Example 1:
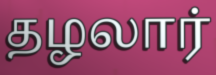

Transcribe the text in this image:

தழலார்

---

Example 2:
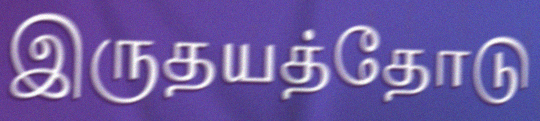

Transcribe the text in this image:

இருதயத்தோடு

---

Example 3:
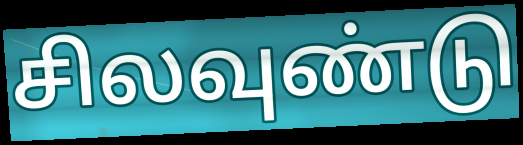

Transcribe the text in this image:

சிலவுண்டு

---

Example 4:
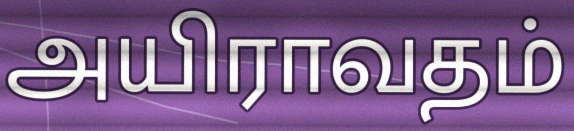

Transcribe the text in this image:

அயிராவதம்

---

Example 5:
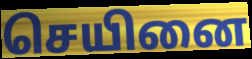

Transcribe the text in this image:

செயினை